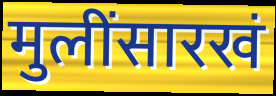
मुलींसारखं